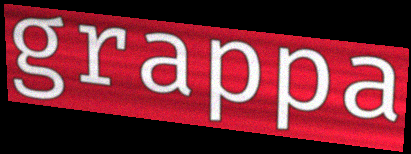
grappa